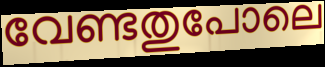
വേണ്ടതുപോലെ